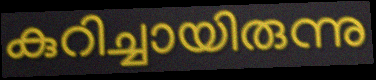
കുറിച്ചായിരുന്നു